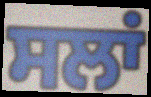
ਸਲਾਂ